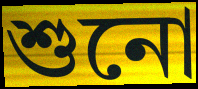
শুনো